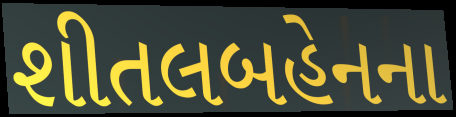
શીતલબહેનના